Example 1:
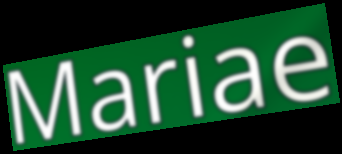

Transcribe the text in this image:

Mariae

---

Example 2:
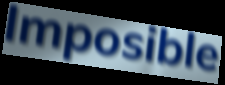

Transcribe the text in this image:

Imposible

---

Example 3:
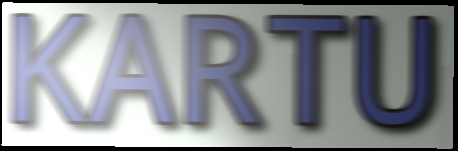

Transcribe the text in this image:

KARTU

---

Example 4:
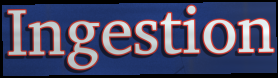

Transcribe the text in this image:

Ingestion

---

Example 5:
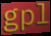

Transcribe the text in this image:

gpl